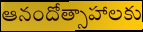
ఆనందోత్సాహాలకు